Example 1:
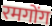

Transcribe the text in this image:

रमगोंग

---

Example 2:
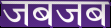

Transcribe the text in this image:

जबजब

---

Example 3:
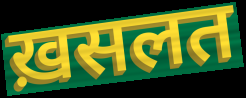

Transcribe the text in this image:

ख़सलत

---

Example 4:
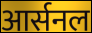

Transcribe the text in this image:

आर्सनल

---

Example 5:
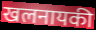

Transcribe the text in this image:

खलनायकी